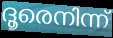
ദൂരെനിന്ന്